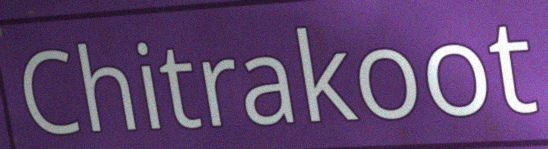
Chitrakoot